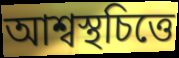
আশ্বস্থচিত্তে